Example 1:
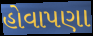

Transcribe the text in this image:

હોવાપણા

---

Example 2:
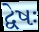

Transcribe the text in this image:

દ્વેષઃ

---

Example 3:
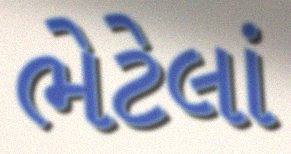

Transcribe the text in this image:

ભેટેલાં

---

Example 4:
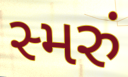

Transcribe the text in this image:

સ્મરું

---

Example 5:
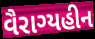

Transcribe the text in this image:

વૈરાગ્યહીન